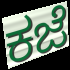
ಕಜೆ